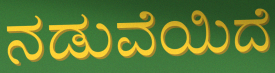
ನಡುವೆಯಿದೆ